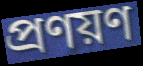
প্ৰণয়ণ